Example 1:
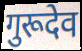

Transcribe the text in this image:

गुरूदेव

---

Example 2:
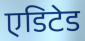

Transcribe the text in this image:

एडिटेड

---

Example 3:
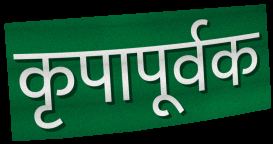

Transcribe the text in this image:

कृपापूर्वक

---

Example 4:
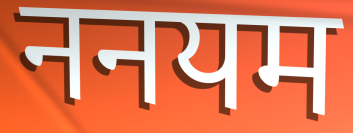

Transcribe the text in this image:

ननयम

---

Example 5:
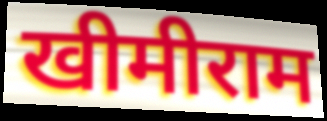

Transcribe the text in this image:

खीमीराम